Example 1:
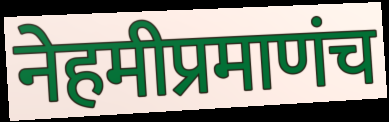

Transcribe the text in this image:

नेहमीप्रमाणंच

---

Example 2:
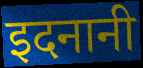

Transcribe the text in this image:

इदनानी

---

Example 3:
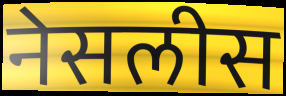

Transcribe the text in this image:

नेसलीस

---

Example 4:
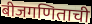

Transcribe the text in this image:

बीजगणिताची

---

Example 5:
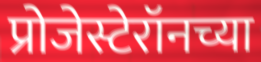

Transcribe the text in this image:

प्रोजेस्टेरॉनच्या